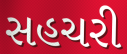
સહચરી